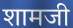
शामजी